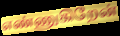
எண்ணுகிறேன்